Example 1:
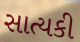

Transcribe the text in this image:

સાત્યકી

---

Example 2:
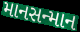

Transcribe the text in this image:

માનસન્માન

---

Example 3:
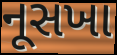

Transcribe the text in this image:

નૂસખા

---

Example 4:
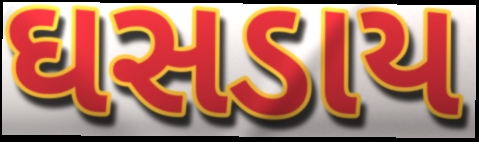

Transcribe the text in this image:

ઘસડાય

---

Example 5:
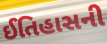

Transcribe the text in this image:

ઈતિહાસની